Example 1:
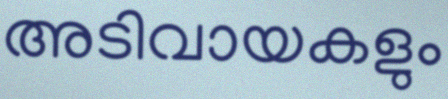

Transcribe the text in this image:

അടിവായകളും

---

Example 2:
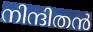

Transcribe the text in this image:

നിന്ദിതൻ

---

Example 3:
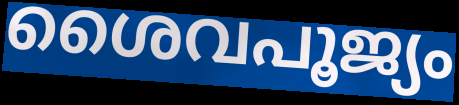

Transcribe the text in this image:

ശൈവപൂജ്യം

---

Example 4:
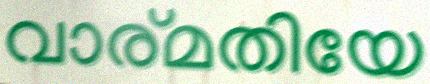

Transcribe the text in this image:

വാര്മതിയേ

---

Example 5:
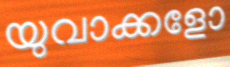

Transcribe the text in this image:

യുവാക്കളോ